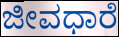
ಜೀವಧಾರೆ